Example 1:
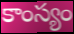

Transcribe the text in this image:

కాంస్యం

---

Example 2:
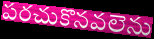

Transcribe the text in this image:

పరచుకొనవలెను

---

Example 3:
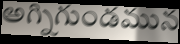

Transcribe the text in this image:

అగ్నిగుండమున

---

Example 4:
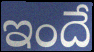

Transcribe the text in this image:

ఇందే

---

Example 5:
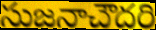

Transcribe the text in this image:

సుజనాచౌదరి